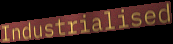
Industrialised